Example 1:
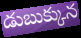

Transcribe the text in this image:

డుబుక్కున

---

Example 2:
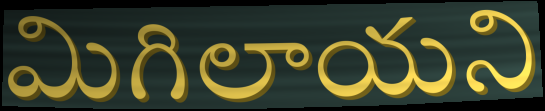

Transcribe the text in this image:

మిగిలాయని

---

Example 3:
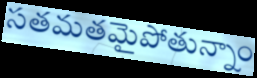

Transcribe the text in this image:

సతమతమైపోతున్నాం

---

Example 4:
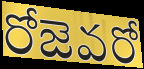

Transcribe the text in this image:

రోజెవరో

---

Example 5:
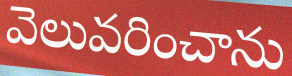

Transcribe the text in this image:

వెలువరించాను